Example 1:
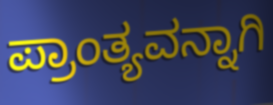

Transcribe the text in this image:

ಪ್ರಾಂತ್ಯವನ್ನಾಗಿ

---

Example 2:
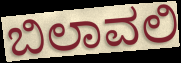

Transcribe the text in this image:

ಬಿಲಾವಲಿ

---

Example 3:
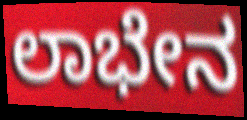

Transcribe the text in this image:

ಲಾಭೇನ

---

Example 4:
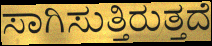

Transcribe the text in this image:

ಸಾಗಿಸುತ್ತಿರುತ್ತದೆ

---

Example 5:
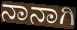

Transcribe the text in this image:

ನಾನಾಗಿ